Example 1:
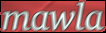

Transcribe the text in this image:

mawla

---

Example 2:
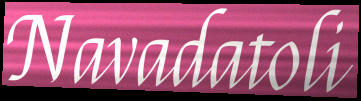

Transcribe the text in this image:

Navadatoli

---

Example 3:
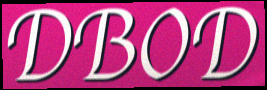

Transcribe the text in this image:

DBOD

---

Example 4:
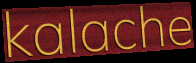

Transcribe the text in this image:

kalache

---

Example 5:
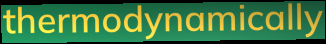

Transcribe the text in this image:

thermodynamically